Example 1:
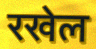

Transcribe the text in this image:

रखेल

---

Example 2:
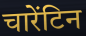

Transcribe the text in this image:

चारेंटिन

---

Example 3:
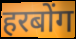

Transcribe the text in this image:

हरबोंग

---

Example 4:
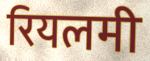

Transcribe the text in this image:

रियलमी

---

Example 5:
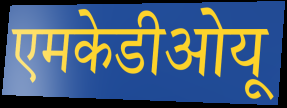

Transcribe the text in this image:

एमकेडीओयू